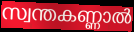
സ്വന്തകണ്ണാൽ